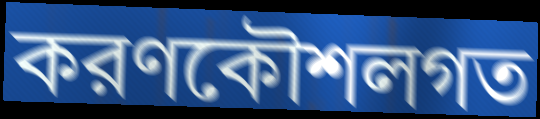
করণকৌশলগত